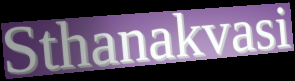
Sthanakvasi